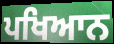
ਪਖਿਆਨ